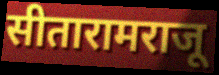
सीतारामराजू